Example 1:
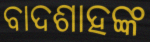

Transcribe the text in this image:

ବାଦଶାହଙ୍କ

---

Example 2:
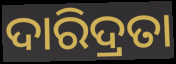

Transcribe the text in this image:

ଦାରିଦ୍ରତା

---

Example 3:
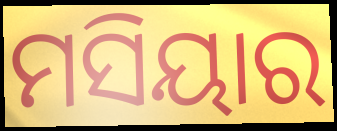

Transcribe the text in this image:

ମସିୟାର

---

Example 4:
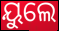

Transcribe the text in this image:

ୟୁଲେ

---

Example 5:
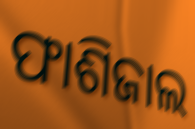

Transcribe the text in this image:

ଫାଶିଜାଲ